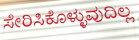
ಸೇರಿಸಿಕೊಳ್ಳುವುದಿಲ್ಲ